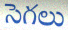
సెగలు